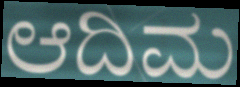
ಆದಿಮ